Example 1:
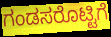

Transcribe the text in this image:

ಗಂಡಸರೊಟ್ಟಿಗೆ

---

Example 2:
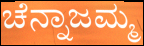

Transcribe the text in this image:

ಚೆನ್ನಾಜಮ್ಮ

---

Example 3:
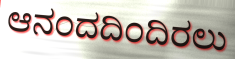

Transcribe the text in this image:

ಆನಂದದಿಂದಿರಲು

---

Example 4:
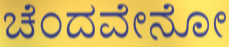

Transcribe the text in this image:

ಚೆಂದವೇನೋ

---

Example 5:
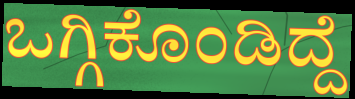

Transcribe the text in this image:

ಒಗ್ಗಿಕೊಂಡಿದ್ದೆ